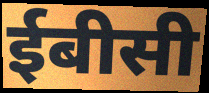
ईबीसी